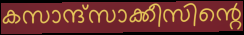
കസാന്ദ്സാക്കീസിന്റെ